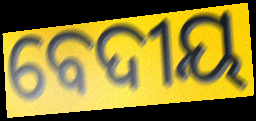
ବେଦୀୟ